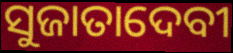
ସୁଜାତାଦେବୀ